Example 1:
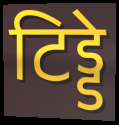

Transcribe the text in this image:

टिड्डे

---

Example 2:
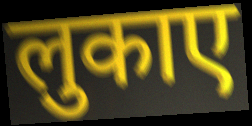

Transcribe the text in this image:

लुकाए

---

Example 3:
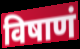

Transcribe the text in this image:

विषाणं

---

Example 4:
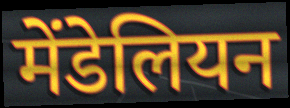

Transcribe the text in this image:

मेंडेलियन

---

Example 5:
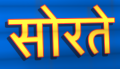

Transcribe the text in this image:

सोरते